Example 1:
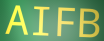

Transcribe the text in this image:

AIFB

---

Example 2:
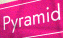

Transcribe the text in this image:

Pyramid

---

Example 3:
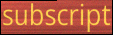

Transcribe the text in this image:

subscript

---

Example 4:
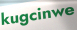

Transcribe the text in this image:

kugcinwe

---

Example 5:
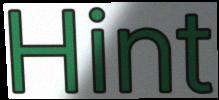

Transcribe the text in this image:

Hint